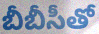
బీబీసీతో